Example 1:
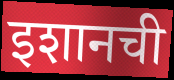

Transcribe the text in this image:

इशानची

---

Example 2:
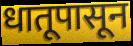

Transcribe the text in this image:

धातूपासून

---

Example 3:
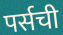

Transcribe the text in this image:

पर्सची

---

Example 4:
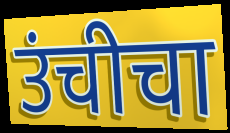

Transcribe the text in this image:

उंचीचा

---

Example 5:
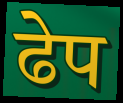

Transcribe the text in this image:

ढेप